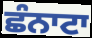
ਛੰਨਾਟਾ